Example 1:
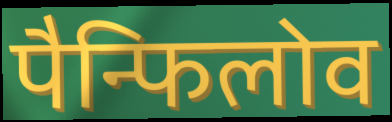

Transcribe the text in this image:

पैन्फिलोव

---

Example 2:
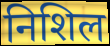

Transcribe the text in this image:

निशिल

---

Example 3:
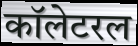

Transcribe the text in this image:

कॉलेटरल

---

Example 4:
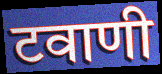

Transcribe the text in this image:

टवाणी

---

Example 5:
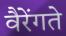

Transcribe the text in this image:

वैरेंगते